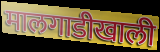
मालगाडीखाली